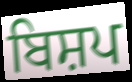
ਬਿਸ਼ਪ